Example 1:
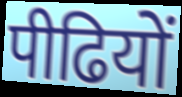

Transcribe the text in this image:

पीढियों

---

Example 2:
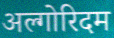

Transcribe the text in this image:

अल्गोरिदम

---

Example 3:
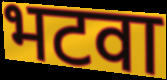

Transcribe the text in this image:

भटवा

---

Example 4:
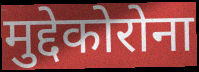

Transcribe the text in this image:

मुद्देकोरोना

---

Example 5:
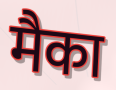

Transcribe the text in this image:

मैका